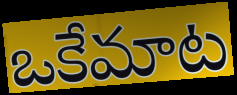
ఒకేమాట